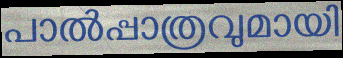
പാൽപ്പാത്രവുമായി